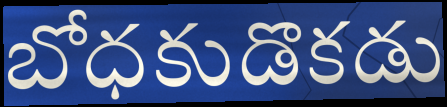
బోధకుడొకడు